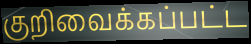
குறிவைக்கப்பட்ட